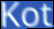
Kot